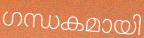
ഗന്ധകമായി